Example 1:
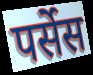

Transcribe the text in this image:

पर्सेस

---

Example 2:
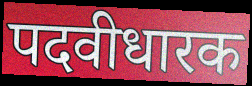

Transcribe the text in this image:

पदवीधारक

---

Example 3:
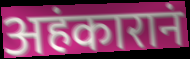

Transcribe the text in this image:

अहंकारानं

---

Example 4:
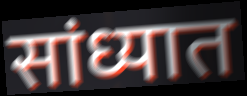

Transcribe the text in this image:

सांध्यात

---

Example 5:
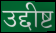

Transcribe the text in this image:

उद्दीष्ट